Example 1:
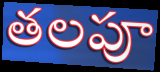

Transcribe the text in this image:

తలపూ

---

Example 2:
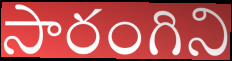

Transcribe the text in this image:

సారంగిని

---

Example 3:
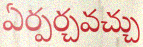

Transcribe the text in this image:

ఏర్పర్చవచ్చు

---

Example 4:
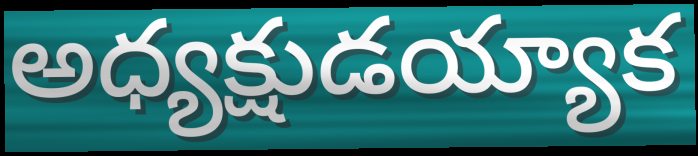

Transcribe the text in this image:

అధ్యక్షుడయ్యాక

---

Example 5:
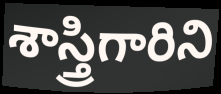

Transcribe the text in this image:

శాస్త్రిగారిని